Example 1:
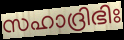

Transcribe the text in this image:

സഹാദ്രിഭിഃ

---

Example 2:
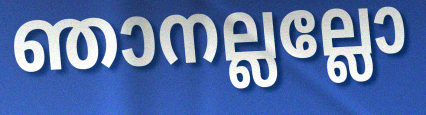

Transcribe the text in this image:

ഞാനല്ലല്ലോ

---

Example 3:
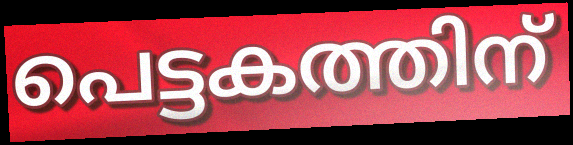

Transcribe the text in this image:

പെട്ടകത്തിന്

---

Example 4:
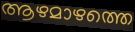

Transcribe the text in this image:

ആഴമാഴത്തെ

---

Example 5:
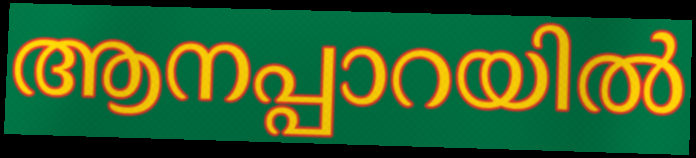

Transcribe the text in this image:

ആനപ്പാറയിൽ